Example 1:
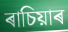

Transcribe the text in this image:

ৰাচিয়াৰ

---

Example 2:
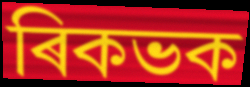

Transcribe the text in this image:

ৰিকভক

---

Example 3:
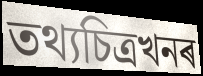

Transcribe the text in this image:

তথ্যচিত্ৰখনৰ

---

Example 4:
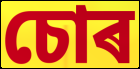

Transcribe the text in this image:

চোৰ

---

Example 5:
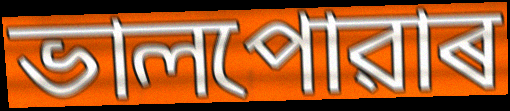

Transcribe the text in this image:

ভালপোৱাৰ